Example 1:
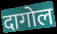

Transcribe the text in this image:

दागोल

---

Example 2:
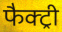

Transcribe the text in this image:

फैक्ट्री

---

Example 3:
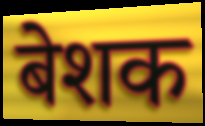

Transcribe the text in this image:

बेशक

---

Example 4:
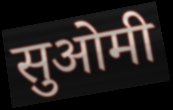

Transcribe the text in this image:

सुओमी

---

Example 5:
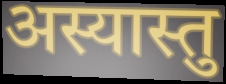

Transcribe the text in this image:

अस्यास्तु